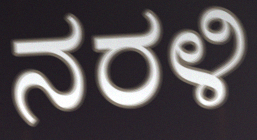
ನರಳಿ